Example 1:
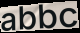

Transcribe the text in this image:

abbc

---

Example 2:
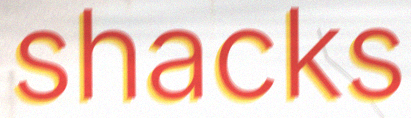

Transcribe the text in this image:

shacks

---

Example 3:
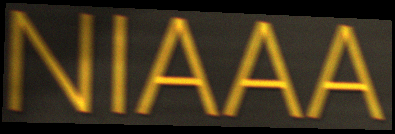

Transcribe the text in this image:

NIAAA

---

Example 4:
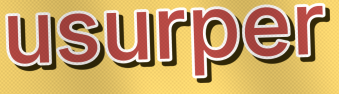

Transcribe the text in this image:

usurper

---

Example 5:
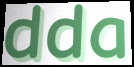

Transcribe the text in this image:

dda